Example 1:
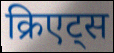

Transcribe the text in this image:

क्रिएट्स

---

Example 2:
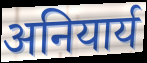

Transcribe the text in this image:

अनियार्य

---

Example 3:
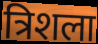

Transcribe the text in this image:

त्रिशला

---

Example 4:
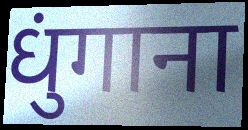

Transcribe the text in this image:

धुंगाना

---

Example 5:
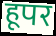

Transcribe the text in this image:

हूपर